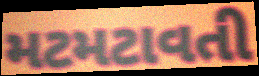
મટમટાવતી